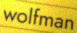
wolfman